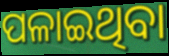
ପଳାଇଥିବା